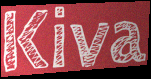
Kiva